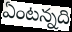
ఏంటన్నది